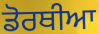
ਡੋਰਥੀਆ